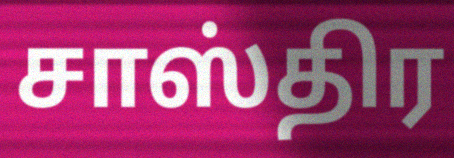
சாஸ்திர